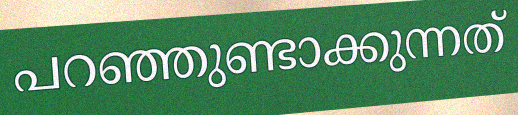
പറഞ്ഞുണ്ടാക്കുന്നത്